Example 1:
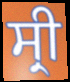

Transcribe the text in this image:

ਸ੍ਰੀ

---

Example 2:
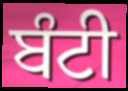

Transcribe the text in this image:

ਬੰਟੀ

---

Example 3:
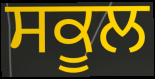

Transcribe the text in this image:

ਸਕੂਲ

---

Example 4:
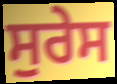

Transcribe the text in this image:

ਸੁਰੇਸ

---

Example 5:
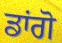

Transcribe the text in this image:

ਡਾਂਗੋ